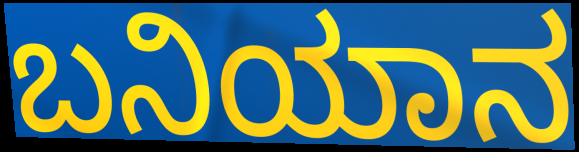
ಬನಿಯಾನ